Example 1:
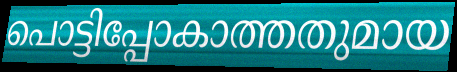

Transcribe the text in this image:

പൊട്ടിപ്പോകാത്തതുമായ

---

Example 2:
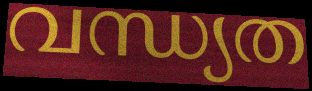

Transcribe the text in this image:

വന്ധ്യത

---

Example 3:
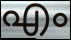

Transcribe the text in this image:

എം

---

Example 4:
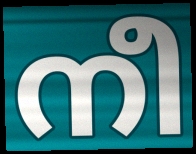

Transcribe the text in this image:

നീ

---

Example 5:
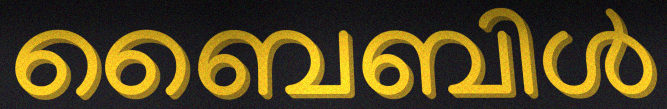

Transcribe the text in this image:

ബൈബിൾ